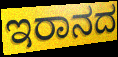
ಇರಾನದ